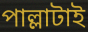
পাল্লাটাই